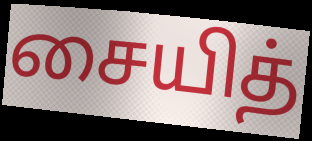
சையித்